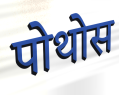
पोथोस